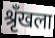
श्रृँखला